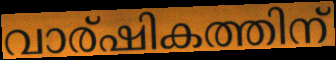
വാര്ഷികത്തിന്